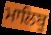
ਮਾਲਿਬੂ